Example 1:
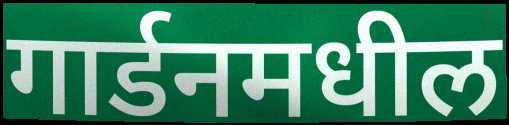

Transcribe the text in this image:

गार्डनमधील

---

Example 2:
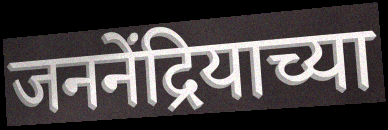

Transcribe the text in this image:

जननेंद्रियाच्या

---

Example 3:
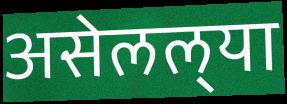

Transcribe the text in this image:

असेलल्या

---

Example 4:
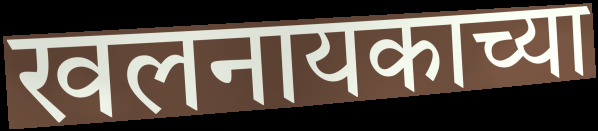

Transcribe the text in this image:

खलनायकाच्या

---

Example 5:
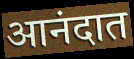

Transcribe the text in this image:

आनंदात